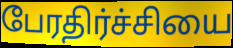
பேரதிர்ச்சியை